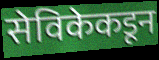
सेविकेकडून